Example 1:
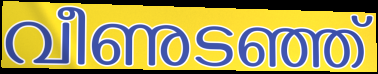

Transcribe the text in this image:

വീണുടഞ്ഞ്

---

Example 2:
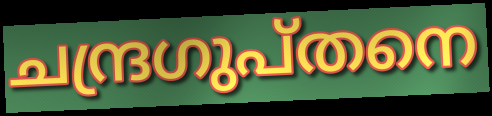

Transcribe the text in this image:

ചന്ദ്രഗുപ്തനെ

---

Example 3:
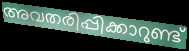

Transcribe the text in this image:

അവതരിപ്പിക്കാറുണ്ട്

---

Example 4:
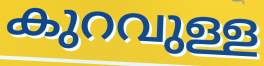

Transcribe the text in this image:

കുറവുള്ള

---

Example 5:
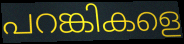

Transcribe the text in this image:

പറങ്കികളെ